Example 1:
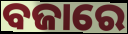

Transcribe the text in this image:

ବଜାରେ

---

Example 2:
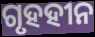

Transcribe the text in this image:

ଗୃହହୀନ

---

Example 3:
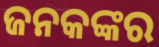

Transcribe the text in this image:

ଜନକଙ୍କର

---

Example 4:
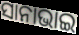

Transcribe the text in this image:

ସାନାଭାଇ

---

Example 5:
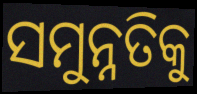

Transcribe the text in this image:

ସମୁନ୍ନତିକୁ